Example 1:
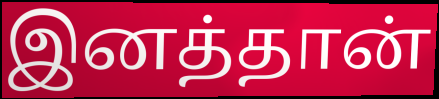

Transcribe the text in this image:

இனத்தான்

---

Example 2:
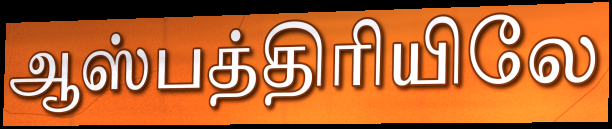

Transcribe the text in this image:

ஆஸ்பத்திரியிலே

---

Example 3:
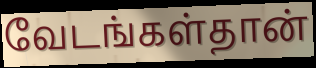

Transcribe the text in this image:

வேடங்கள்தான்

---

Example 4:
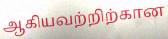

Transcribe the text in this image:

ஆகியவற்றிற்கான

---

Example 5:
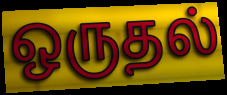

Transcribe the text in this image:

ஒருதல்